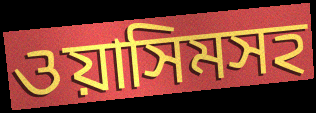
ওয়াসিমসহ